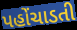
પહોંચાડતી